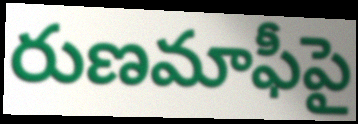
రుణమాఫీపై